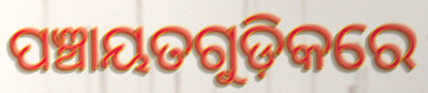
ପଞ୍ଚାୟତଗୁଡ଼ିକରେ